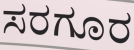
ಸರಗೂರ